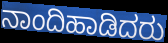
ನಾಂದಿಹಾಡಿದರು